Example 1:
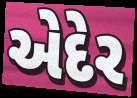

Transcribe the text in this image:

એદેર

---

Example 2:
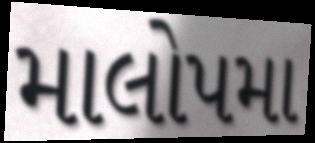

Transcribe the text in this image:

માલોપમા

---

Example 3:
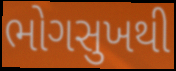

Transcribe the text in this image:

ભોગસુખથી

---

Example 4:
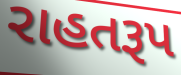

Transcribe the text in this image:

રાહતરૂપ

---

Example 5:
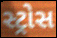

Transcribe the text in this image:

સ્ટ્રોસ